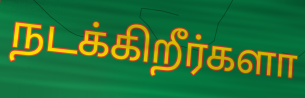
நடக்கிறீர்களா